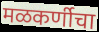
मळकर्णीचा